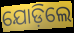
ଯୋଡ଼ିଲେ